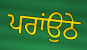
ਪਰਾਂਉਠੇ